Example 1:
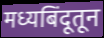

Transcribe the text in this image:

मध्यबिंदूतून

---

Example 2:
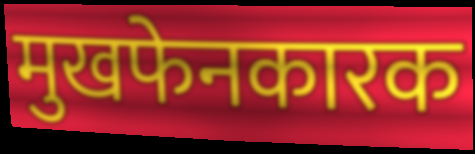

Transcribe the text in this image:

मुखफेनकारक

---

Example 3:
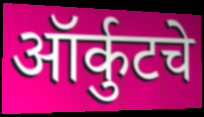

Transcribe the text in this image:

ऑर्कुटचे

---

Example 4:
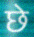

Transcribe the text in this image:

छे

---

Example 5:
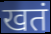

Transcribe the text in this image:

खतं